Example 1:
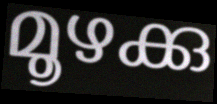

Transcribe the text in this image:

മൂഴക്കു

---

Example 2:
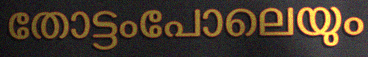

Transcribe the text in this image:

തോട്ടംപോലെയും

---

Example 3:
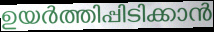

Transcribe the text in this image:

ഉയർത്തിപ്പിടിക്കാൻ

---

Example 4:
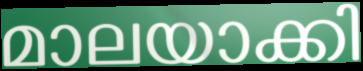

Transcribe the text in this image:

മാലയാക്കി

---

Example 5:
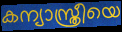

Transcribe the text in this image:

കന്യാസ്ത്രീയെ